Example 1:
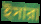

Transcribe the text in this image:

ইসারা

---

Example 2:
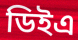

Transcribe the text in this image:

ডিইএ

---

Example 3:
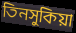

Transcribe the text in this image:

তিনসুকিয়া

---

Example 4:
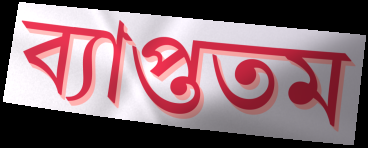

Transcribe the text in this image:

ব্যাপ্ততম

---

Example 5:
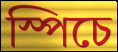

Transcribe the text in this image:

স্পিচে